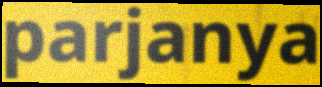
parjanya